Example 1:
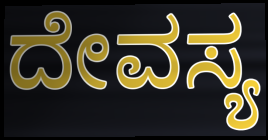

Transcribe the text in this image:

ದೇವಸ್ಯ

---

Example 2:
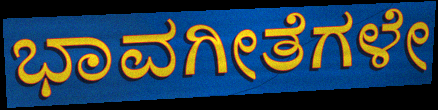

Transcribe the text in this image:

ಭಾವಗೀತೆಗಳೇ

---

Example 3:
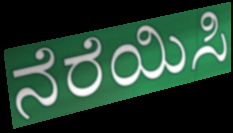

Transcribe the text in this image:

ನೆರೆಯಿಸಿ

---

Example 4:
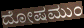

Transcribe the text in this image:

ದೋಷಮುಂ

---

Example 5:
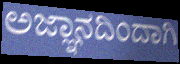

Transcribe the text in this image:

ಅಜ್ಞಾನದಿಂದಾಗಿ